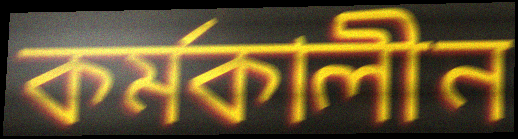
কর্মকালীন